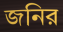
জনির